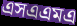
এসএএমএ